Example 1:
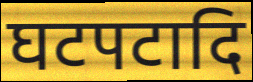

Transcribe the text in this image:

घटपटादि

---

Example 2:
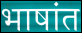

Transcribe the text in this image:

भाषांत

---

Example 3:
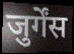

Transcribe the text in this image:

जुर्गेंस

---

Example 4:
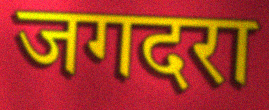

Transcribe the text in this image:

जगदरा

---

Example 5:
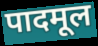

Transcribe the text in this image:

पादमूल